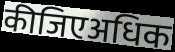
कीजिएअधिक